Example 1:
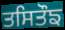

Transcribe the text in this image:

ਤਸਿਤੌਙ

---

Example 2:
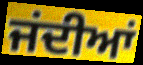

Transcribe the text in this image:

ਜਂਦੀਆਂ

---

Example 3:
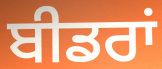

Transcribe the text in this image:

ਬੀਡਰਾਂ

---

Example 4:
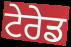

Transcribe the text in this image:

ਟੇਰੇਡ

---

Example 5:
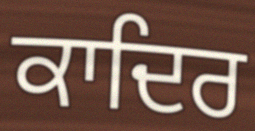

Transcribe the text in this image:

ਕਾਦਿਰ